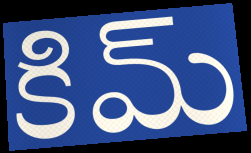
కిమ్